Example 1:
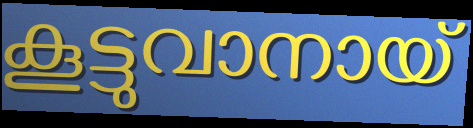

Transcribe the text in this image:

കൂട്ടുവാനായ്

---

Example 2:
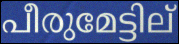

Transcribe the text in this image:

പീരുമേട്ടില്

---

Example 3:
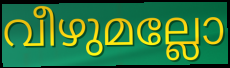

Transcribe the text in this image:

വീഴുമല്ലോ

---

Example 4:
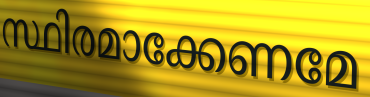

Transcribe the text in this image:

സ്ഥിരമാക്കേണമേ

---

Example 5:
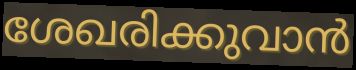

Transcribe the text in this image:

ശേഖരിക്കുവാൻ